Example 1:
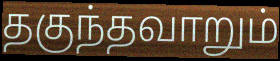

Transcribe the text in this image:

தகுந்தவாறும்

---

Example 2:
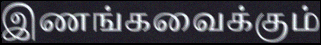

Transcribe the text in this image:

இணங்கவைக்கும்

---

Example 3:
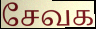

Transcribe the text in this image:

சேவக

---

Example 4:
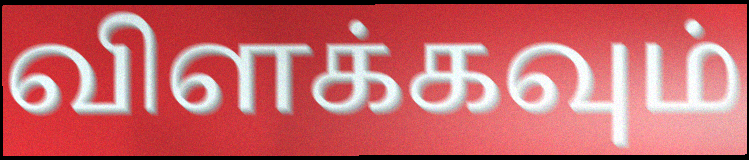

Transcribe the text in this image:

விளக்கவும்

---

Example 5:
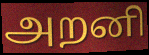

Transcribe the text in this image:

அறனி